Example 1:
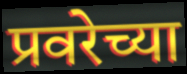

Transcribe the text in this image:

प्रवरेच्या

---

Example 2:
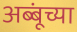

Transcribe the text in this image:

अब्बूंच्या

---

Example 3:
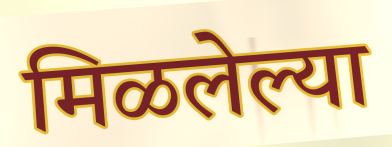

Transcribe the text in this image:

मिळलेल्या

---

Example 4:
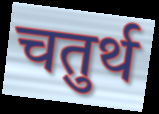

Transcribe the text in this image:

चतुर्थ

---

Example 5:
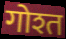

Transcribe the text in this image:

गोश्त